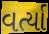
વર્ત્યા